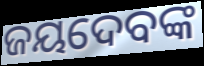
ଜୟଦେବଙ୍କ